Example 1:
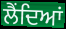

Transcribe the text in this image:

ਲੈਂਦਿਆਂ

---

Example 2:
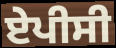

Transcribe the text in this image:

ਏਪੀਸੀ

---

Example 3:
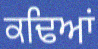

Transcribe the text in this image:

ਕਢਿਆਂ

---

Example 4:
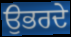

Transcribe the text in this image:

ਉਭਰਦੇ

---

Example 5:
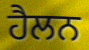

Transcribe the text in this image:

ਹੈਲਨ